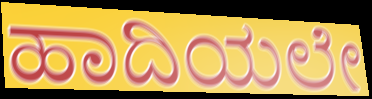
ಹಾದಿಯಲೇ